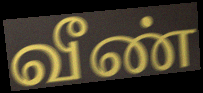
வீண்